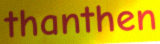
thanthen